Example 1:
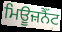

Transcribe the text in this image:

ਮਿਊਜ਼ਨੈੱਟ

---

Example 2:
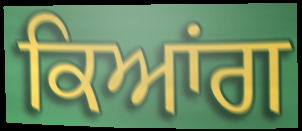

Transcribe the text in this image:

ਕਿਆਂਗ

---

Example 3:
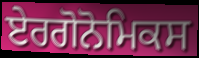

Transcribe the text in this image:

ਏਰਗੋਨੋਮਿਕਸ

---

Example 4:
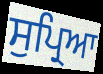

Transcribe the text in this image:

ਸੁਪ੍ਰਿਆ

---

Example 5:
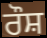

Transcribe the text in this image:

ਰੌਸ਼